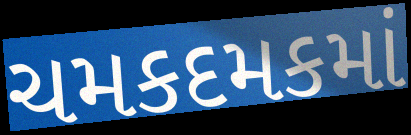
ચમકદમકમાં